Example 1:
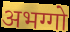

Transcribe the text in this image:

अभग्गो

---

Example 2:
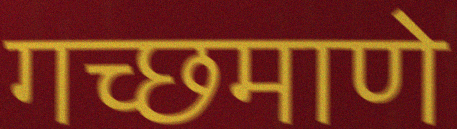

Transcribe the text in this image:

गच्छमाणे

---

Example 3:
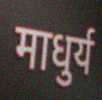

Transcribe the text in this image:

माधुर्य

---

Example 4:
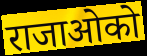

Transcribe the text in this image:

राजाओको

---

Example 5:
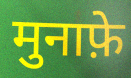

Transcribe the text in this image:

मुनाफ़े